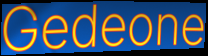
Gedeone